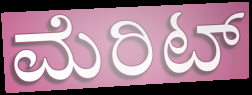
ಮೆರಿಟ್